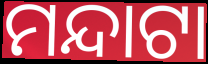
ମନ୍ଦାଟା